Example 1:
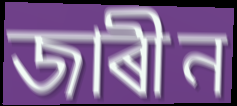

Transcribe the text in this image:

জাৰীন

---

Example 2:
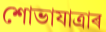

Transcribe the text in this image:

শোভাযাত্ৰাৰ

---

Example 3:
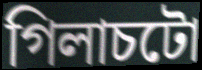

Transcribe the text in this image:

গিলাচটো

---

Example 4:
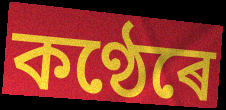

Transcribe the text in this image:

কণ্ঠেৰে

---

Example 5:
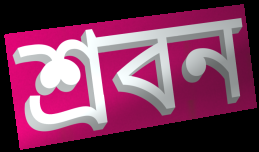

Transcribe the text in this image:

শ্ৰবন